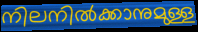
നിലനിൽക്കാനുമുള്ള